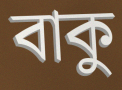
বাকু